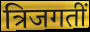
त्रिजगतीं